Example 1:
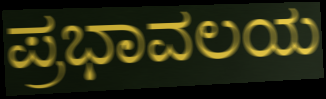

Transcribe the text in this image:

ಪ್ರಭಾವಲಯ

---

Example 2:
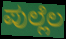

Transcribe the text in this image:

ಪುಲ್ಲೆಲ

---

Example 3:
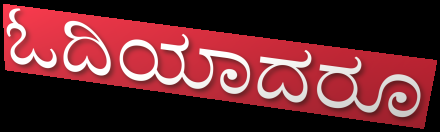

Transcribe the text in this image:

ಓದಿಯಾದರೂ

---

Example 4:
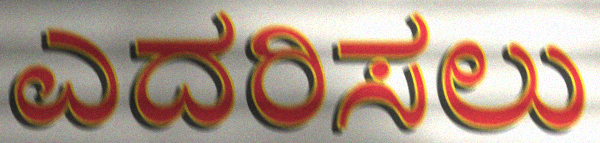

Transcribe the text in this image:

ಎದರಿಸಲು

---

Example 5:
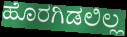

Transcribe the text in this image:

ಹೊರಗಿಡಲಿಲ್ಲ